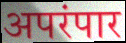
अपरंपार